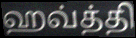
ஹவ்த்தி